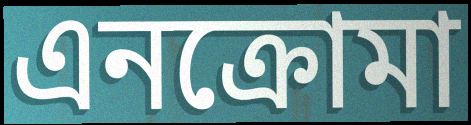
এনক্রোমা